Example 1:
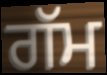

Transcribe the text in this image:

ਗੱਮ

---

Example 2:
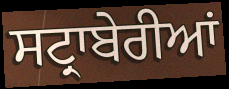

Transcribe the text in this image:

ਸਟ੍ਰਾਬੇਰੀਆਂ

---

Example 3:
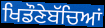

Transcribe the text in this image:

ਖਿਡੌਣੇਬੱਚਿਆਂ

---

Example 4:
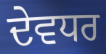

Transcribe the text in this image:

ਦੇਵਧਰ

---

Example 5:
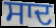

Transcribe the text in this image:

ਸਾਦ